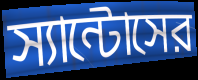
স্যান্টোসের